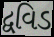
દ્વવિડ